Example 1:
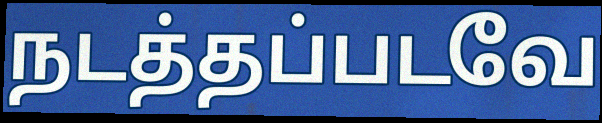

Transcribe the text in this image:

நடத்தப்படவே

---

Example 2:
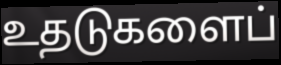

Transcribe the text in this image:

உதடுகளைப்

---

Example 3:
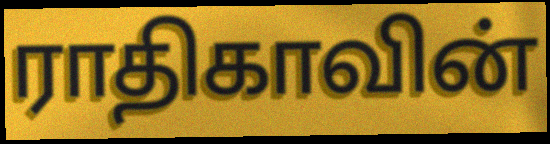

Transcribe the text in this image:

ராதிகாவின்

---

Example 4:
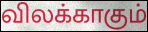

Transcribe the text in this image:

விலக்காகும்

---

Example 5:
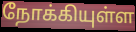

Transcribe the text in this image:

நோக்கியுள்ள